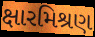
ક્ષારમિશ્રણ